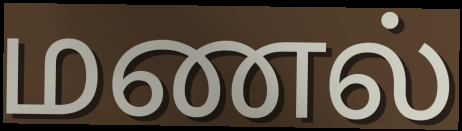
மணல்